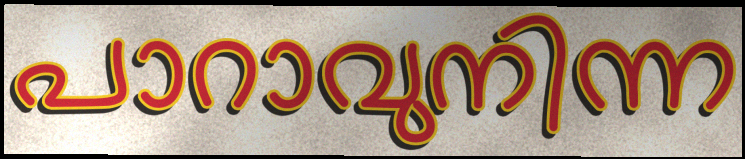
പാറാവുനിന്ന